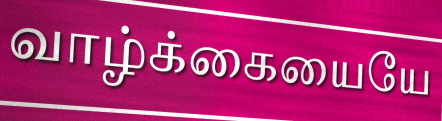
வாழ்க்கையையே